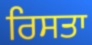
ਰਿਸਤਾ